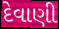
દેવાણી